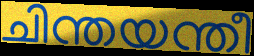
ചിന്തയന്തീ